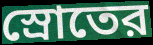
স্রোতের